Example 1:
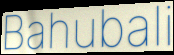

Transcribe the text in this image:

Bahubali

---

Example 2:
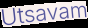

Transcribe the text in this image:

Utsavam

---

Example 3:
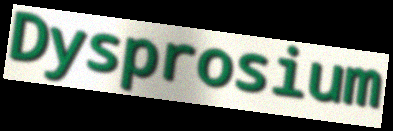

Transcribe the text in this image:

Dysprosium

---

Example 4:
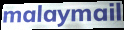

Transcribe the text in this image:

malaymail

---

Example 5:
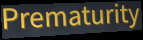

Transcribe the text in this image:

Prematurity